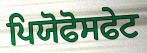
ਪਿਯੋਫੋਸਫੇਟ